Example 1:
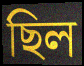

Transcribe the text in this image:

ছিল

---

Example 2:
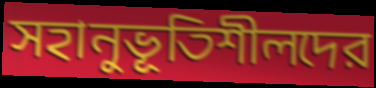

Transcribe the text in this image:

সহানুভূতিশীলদের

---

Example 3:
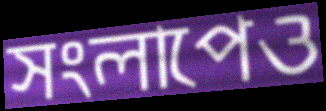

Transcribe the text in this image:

সংলাপেও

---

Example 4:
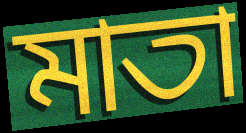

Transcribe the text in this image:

মাতা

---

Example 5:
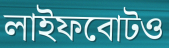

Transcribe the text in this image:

লাইফবোটও